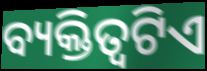
ବ୍ୟକ୍ତିତ୍ବଟିଏ